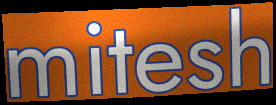
mitesh